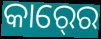
କାର୍‍ରେ